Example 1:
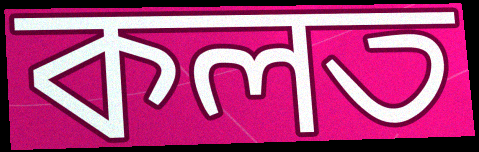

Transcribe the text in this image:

কলত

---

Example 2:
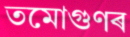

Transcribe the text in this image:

তমোগুণৰ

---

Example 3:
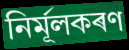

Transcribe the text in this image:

নিৰ্মূলকৰণ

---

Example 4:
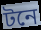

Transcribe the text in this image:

টনে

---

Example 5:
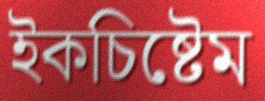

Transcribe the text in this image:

ইকচিষ্টেম